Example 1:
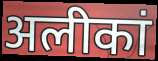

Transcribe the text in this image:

अलीकां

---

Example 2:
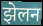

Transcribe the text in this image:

झेलन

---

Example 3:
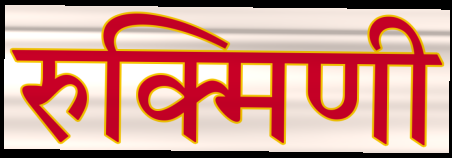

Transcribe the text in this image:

रुक्मिणी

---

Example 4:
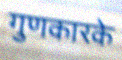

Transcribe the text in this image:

गुणकारके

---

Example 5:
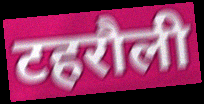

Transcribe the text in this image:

टहरौली